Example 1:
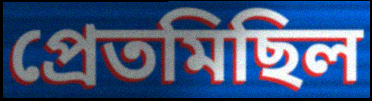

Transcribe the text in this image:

প্রেতমিছিল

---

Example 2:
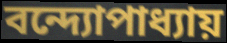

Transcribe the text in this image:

বন্দ্যোপাধ্যায়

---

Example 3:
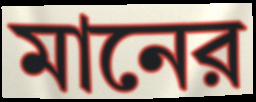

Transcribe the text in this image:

মানের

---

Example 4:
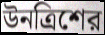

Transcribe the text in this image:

উনত্রিশের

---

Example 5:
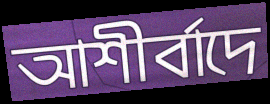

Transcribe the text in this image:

আশীর্বাদে